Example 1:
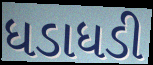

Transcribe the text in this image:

ધડાધડી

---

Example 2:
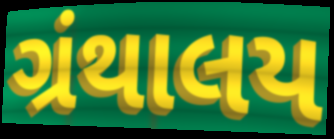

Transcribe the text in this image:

ગ્રંથાલય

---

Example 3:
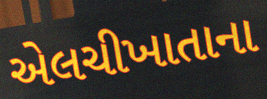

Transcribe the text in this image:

એલચીખાતાના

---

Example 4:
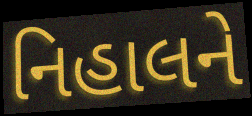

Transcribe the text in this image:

નિહાલને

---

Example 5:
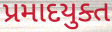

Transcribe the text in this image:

પ્રમાદયુક્ત